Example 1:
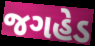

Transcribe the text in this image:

જગહેડ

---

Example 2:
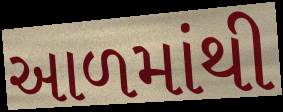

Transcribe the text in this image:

આળમાંથી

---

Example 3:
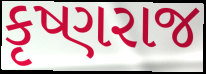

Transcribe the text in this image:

કૃષ્ણરાજ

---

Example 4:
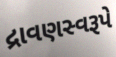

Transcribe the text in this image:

દ્રાવણસ્વરૂપે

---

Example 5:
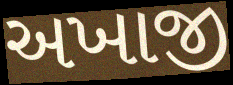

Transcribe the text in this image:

અખાજી